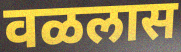
वळलास